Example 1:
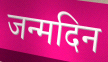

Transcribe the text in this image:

जन्मदिन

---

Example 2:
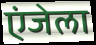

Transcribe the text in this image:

एंजेला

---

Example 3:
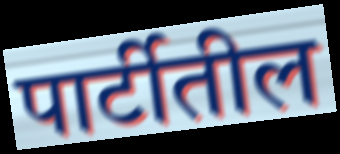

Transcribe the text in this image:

पार्टीतील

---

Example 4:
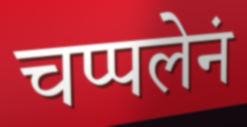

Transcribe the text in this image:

चप्पलेनं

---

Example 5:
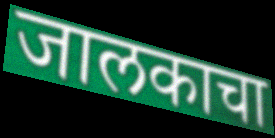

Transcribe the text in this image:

जालकाचा